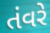
તંવરે